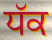
ਧੱਕ